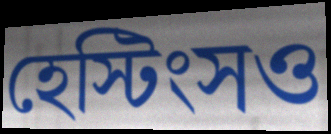
হেস্টিংসও